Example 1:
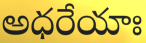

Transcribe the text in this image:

అధరేయాః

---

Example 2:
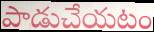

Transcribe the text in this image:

పాడుచేయటం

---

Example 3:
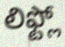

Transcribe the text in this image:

లిఫ్ట్లో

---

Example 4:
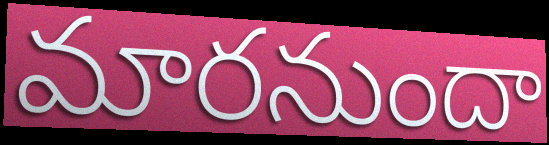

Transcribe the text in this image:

మారనుందా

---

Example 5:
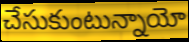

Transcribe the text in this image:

చేసుకుంటున్నాయో